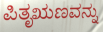
ಪಿತೃಋಣವನ್ನು